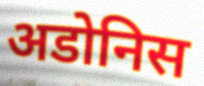
अडोनिस